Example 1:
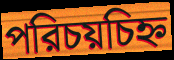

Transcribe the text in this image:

পরিচয়চিহ্ন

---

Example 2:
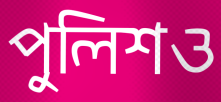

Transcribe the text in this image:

পুলিশও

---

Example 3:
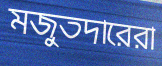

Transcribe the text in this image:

মজুতদারেরা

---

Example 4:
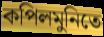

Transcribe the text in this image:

কপিলমুনিতে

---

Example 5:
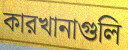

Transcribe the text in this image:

কারখানাগুলি